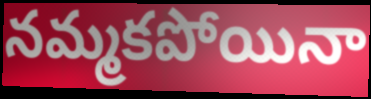
నమ్మకపోయినా